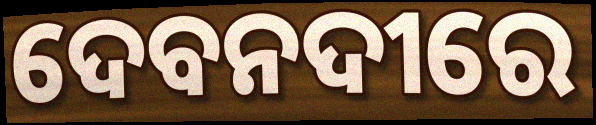
ଦେବନଦୀରେ